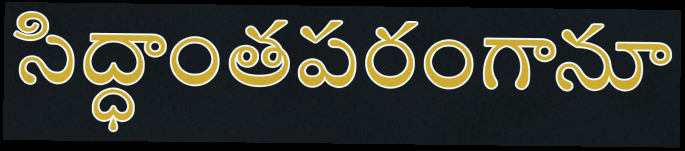
సిద్ధాంతపరంగానూ